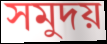
সমুদয়